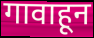
गावाहून